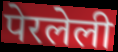
पेरलेली